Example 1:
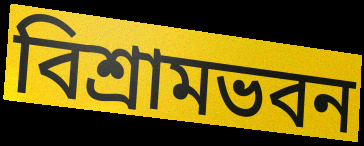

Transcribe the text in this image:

বিশ্রামভবন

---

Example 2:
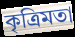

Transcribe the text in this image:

কৃত্রিমতা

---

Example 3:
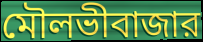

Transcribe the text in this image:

মৌলভীবাজার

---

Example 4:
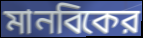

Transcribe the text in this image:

মানবিকের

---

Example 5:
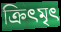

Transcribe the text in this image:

ক্রিৎমৃৎ